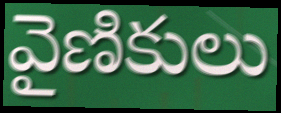
వైణికులు